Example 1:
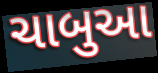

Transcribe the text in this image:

ચાબુઆ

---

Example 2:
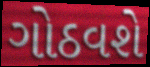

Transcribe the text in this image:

ગોઠવશે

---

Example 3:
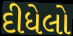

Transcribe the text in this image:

દીધેલો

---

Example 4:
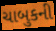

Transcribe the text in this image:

ચાબુકની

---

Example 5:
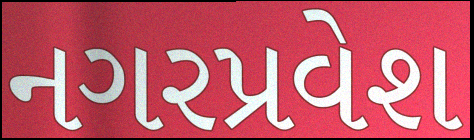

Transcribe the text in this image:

નગરપ્રવેશ